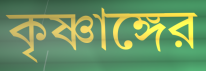
কৃষ্ণাঙ্গের